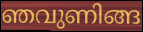
ഞവുണിങ്ങ